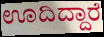
ಊದಿದ್ದಾರೆ